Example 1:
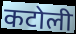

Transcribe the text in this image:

कटोली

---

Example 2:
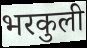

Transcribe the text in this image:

भरकुली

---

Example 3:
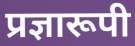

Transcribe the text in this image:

प्रज्ञारूपी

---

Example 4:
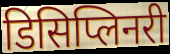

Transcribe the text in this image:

डिसिप्लिनरी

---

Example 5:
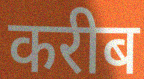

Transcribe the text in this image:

करीब